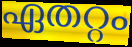
ഏതറ്റം